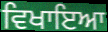
ਵਿਖਾਇਆ